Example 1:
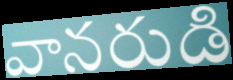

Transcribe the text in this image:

వానరుడి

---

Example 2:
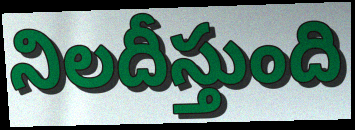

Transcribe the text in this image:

నిలదీస్తుంది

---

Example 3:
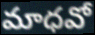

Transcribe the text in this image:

మాధవో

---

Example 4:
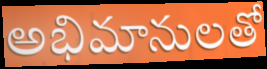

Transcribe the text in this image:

అభిమానులతో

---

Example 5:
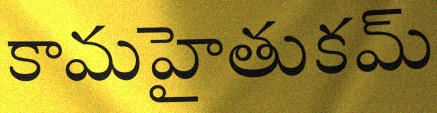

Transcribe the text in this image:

కామహైతుకమ్